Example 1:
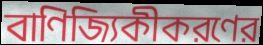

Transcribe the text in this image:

বাণিজ্যিকীকরণের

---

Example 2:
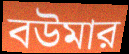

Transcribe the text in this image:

বউমার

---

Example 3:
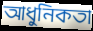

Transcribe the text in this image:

আধুনিকতা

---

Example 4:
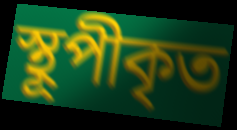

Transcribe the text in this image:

স্থূপীকৃত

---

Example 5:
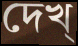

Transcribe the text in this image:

দেখ্